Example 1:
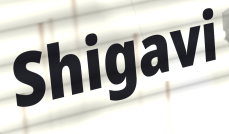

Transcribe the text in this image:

Shigavi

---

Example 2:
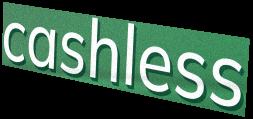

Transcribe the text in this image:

cashless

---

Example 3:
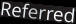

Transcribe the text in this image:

Referred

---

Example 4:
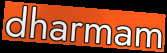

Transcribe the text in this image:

dharmam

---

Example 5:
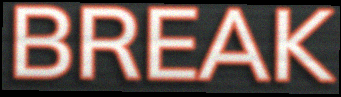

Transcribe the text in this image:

BREAK